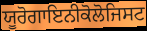
ਯੂਰੋਗਾਇਨੀਕੋਲੋਜਿਸਟ